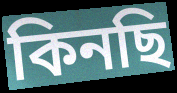
কিনছি